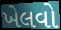
ખેલવો